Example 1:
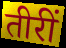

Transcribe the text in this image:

तीरीं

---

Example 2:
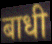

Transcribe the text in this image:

बाधी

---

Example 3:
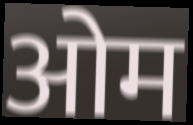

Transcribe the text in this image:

ओम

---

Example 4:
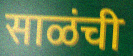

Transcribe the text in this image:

साळंची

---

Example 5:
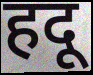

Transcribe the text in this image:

हदू